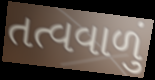
તત્વવાળું